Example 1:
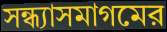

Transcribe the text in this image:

সন্ধ্যাসমাগমের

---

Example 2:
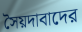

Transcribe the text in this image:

সৈয়দাবাদের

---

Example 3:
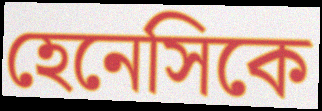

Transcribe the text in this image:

হেনেসিকে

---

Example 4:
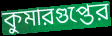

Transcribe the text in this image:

কুমারগুপ্তের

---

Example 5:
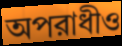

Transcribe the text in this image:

অপরাধীও